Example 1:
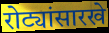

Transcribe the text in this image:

रोट्यांसारखे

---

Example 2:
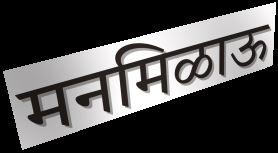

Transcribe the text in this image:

मनमिळाऊ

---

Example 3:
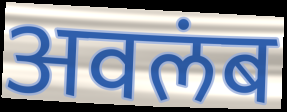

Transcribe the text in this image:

अवलंब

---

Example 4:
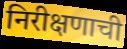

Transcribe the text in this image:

निरीक्षणाची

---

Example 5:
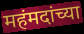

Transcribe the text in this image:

महंमदांच्या